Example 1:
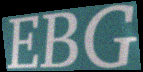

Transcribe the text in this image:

EBG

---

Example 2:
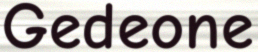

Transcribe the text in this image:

Gedeone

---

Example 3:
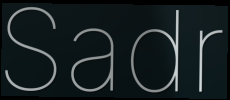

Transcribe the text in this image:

Sadr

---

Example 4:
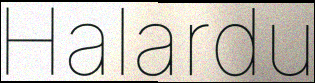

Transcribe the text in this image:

Halardu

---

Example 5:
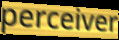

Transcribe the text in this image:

perceiver